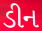
ડીન